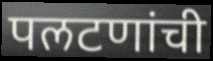
पलटणांची